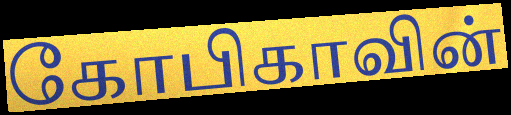
கோபிகாவின்